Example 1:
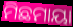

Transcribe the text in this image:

ମିଛମାୟା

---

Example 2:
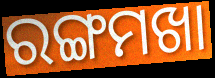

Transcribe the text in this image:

ରଙ୍ଗମଖା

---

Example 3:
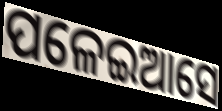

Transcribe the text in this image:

ପଳେଇଆସେ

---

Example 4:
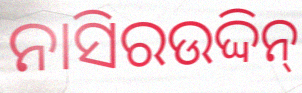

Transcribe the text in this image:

ନାସିରଉଦ୍ଦିନ୍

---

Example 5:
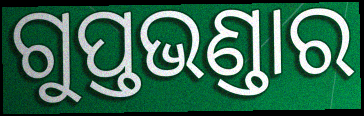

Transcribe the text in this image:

ଗୁପ୍ତଭଣ୍ଡାର